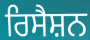
ਰਿਸੈਸ਼ਨ